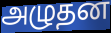
அழுதன